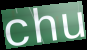
chu